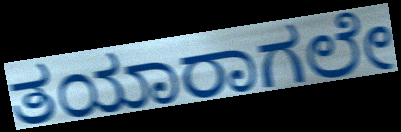
ತಯಾರಾಗಲೇ